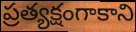
ప్రత్యక్షంగాకాని